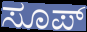
ಸೂಪ್